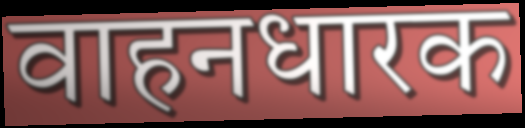
वाहनधारक